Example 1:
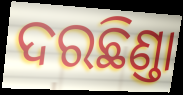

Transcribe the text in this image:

ଦରଛିଣ୍ଡା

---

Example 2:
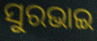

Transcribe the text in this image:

ସୁରଭାଇ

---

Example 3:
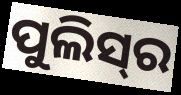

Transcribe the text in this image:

ପୁଲିସ୍‍ର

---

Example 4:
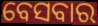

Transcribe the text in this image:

ବେସବାର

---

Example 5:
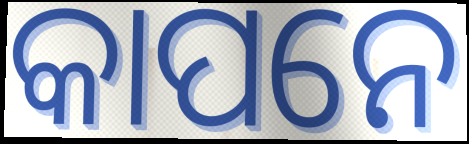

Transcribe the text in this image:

କାପନେ